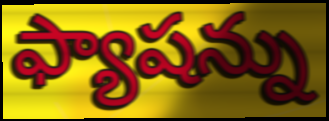
ఫ్యాషన్ను